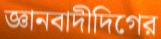
জ্ঞানবাদীদিগের